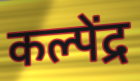
कल्पेंद्र